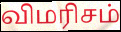
விமரிசம்